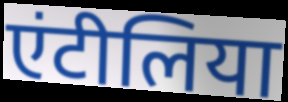
एंटीलिया